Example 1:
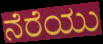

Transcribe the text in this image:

ನೆರೆಯು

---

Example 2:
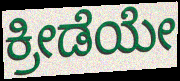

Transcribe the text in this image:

ಕ್ರೀಡೆಯೇ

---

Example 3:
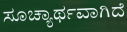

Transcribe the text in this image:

ಸೂಚ್ಯಾರ್ಥವಾಗಿದೆ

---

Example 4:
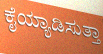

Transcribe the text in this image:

ಕೈಯ್ಯಾಡಿಸುತ್ತಾ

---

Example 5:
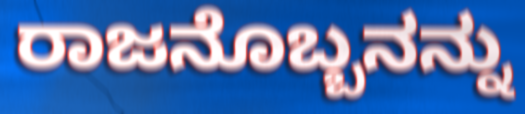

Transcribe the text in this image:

ರಾಜನೊಬ್ಬನನ್ನು